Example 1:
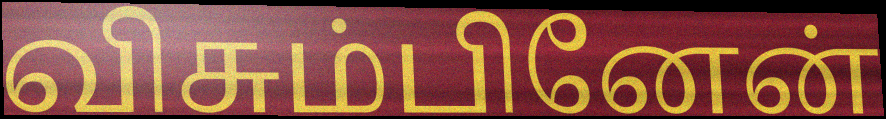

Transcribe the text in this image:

விசும்பினேன்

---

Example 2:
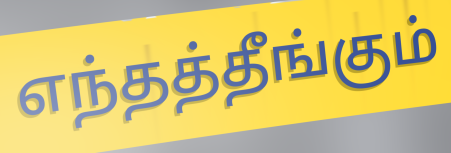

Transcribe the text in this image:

எந்தத்தீங்கும்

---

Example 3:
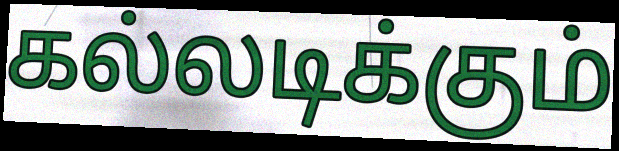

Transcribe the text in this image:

கல்லடிக்கும்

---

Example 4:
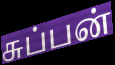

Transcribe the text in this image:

சுப்பன்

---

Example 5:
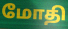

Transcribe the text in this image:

மோதி